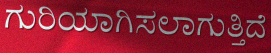
ಗುರಿಯಾಗಿಸಲಾಗುತ್ತಿದೆ